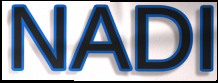
NADI